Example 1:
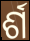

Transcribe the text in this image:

ର୍ଶ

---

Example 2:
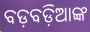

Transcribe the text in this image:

ବଡ଼ବଡ଼ିଆଙ୍କ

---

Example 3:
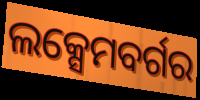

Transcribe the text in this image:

ଲକ୍ସେମବର୍ଗର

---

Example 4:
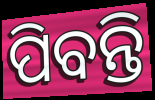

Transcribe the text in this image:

ପିବନ୍ତି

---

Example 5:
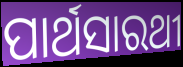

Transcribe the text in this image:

ପାର୍ଥସାରଥୀ